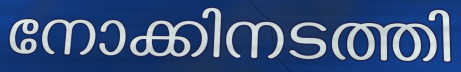
നോക്കിനടത്തി